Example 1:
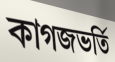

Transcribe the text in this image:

কাগজভর্তি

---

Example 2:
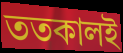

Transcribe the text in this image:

ততকালই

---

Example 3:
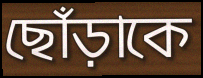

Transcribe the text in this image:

ছোঁড়াকে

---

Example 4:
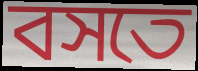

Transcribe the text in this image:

বসতে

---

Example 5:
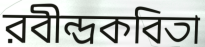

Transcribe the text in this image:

রবীন্দ্রকবিতা